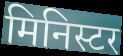
मिनिस्टर